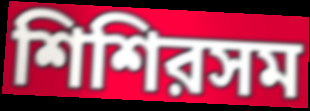
শিশিরসম